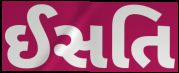
ઈસતિ